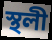
স্থলী